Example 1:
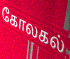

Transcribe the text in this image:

கோலகல்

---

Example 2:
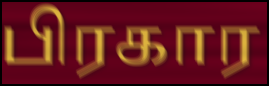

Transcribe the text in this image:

பிரகார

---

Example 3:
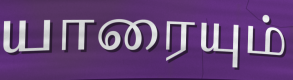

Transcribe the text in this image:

யாரையும்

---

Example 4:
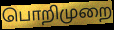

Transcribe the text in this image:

பொறிமுறை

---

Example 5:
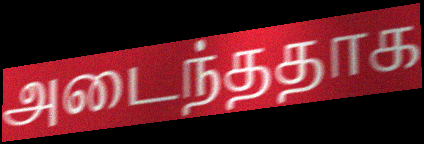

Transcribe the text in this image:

அடைந்ததாக